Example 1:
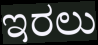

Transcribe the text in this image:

ಇರಲು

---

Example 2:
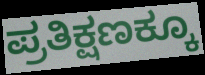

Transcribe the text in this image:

ಪ್ರತಿಕ್ಷಣಕ್ಕೂ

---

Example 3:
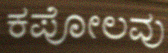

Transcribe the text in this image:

ಕಪೋಲವು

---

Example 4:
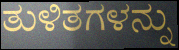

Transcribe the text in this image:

ತುಳಿತಗಳನ್ನು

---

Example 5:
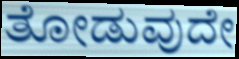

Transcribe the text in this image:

ತೋಡುವುದೇ